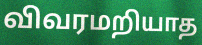
விவரமறியாத